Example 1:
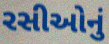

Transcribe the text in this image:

રસીઓનું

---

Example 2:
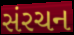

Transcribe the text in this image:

સંરચન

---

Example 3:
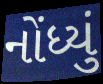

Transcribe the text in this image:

નોંધ્યું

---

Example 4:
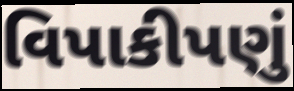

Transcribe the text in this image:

વિપાકીપણું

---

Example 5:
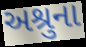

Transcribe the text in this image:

અશ્રુના